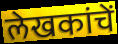
लेखकांचें